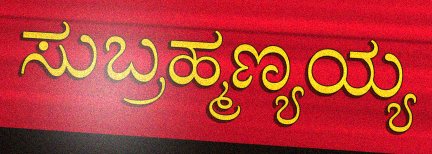
ಸುಬ್ರಹ್ಮಣ್ಯಯ್ಯ